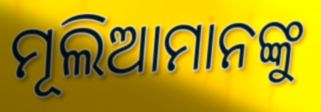
ମୂଲିଆମାନଙ୍କୁ